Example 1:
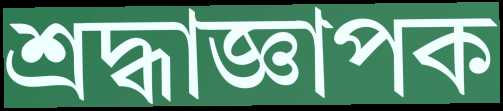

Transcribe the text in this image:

শ্রদ্ধাজ্ঞাপক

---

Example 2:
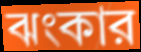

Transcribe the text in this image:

ঝংকার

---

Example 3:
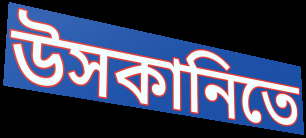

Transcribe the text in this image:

উসকানিতে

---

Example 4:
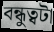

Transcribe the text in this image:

বন্ধুত্বটা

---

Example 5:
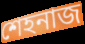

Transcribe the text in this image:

শেহনাজ